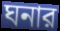
ঘনার